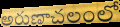
అరుణాచలంలో